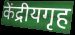
केंद्रीयगृह